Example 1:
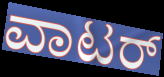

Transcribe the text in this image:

ವಾಟರ್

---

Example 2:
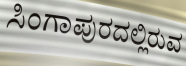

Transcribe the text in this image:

ಸಿಂಗಾಪುರದಲ್ಲಿರುವ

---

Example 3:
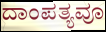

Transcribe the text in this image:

ದಾಂಪತ್ಯವೂ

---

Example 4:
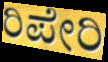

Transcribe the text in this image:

ರಿಪೇರಿ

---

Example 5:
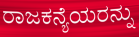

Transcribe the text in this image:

ರಾಜಕನ್ಯೆಯರನ್ನು